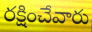
రక్షించేవారు